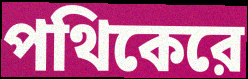
পথিকেরে